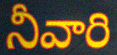
నీవారి